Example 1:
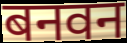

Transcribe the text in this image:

बनवन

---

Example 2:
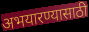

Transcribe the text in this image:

अभयारण्यासाठी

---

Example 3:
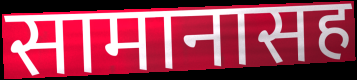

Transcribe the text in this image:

सामानासह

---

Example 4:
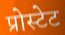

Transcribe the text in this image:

प्रोस्टेट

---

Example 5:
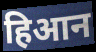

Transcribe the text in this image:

हिआन